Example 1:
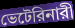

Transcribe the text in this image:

ভেটেরিনারী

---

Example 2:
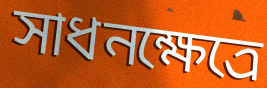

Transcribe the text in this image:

সাধনক্ষেত্রে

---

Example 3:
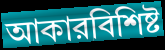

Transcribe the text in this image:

আকারবিশিষ্ট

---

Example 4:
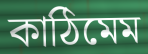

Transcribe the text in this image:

কাঠিমেম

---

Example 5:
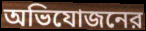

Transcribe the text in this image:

অভিযোজনের